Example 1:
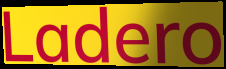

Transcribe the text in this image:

Ladero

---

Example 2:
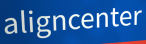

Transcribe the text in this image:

aligncenter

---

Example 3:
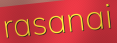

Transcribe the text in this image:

rasanai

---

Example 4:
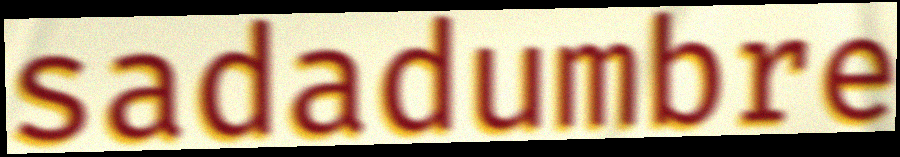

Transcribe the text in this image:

sadadumbre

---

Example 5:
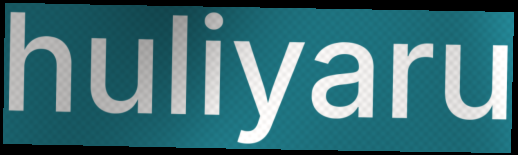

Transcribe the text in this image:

huliyaru